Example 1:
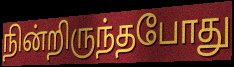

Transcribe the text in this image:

நின்றிருந்தபோது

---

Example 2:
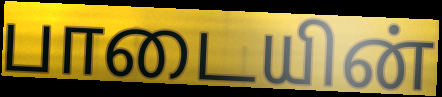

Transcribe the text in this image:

பாடையின்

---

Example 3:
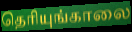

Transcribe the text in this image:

தெரியுங்காலை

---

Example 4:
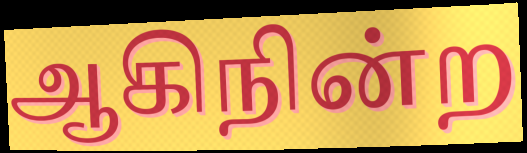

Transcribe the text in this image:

ஆகிநின்ற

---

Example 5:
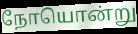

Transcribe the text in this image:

நோயொன்று